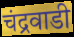
चंद्रवाडी